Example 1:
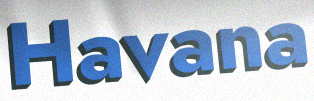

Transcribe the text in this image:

Havana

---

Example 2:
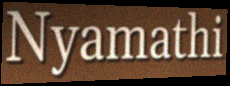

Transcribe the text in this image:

Nyamathi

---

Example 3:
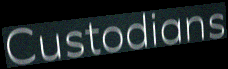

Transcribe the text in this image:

Custodians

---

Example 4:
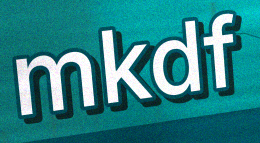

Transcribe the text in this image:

mkdf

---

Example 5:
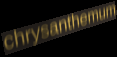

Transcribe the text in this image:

chrysanthemum